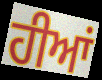
ਹੀਆਂ